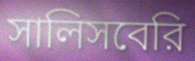
সালিসবেরি